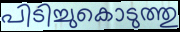
പിടിച്ചുകൊടുത്തു